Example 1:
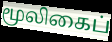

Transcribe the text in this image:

மூலிகைப்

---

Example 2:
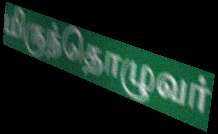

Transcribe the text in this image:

மிருந்தொழுவர்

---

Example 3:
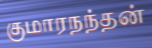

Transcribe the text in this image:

குமாரநந்தன்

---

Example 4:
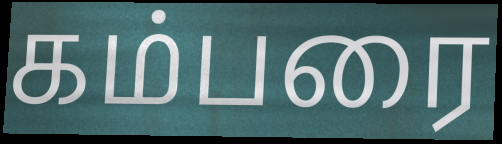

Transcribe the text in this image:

கம்பரை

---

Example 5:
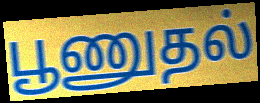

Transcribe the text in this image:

பூணுதல்